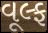
વૂલ્ફ